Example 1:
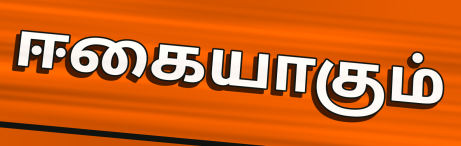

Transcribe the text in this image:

ஈகையாகும்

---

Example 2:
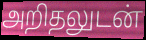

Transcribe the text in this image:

அறிதலுடன்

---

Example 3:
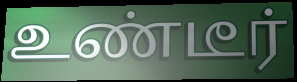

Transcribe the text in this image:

உண்டீர்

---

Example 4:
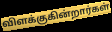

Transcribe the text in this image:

விளக்குகின்றார்கள்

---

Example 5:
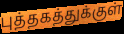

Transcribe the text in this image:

புத்தகத்துக்குள்